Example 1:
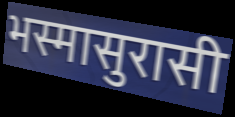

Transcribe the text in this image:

भस्मासुरासी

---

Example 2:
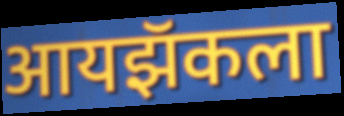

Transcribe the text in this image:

आयझॅकला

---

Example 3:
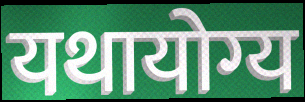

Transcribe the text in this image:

यथायोग्य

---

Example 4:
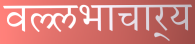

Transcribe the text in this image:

वल्लभाचार्य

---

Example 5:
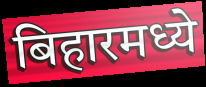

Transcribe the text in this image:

बिहारमध्ये